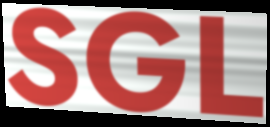
SGL